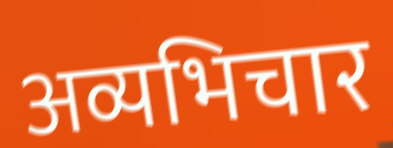
अव्यभिचार